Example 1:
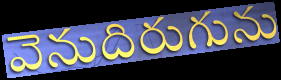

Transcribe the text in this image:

వెనుదిరుగును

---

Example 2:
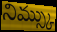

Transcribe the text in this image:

నిమ్స్కు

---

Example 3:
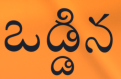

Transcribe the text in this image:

ఒడ్డిన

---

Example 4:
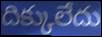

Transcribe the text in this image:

దిక్కులేదు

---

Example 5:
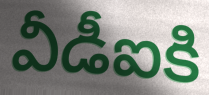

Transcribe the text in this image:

వీడీఐకి